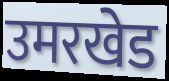
उमरखेड